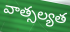
వాత్సల్యత